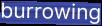
burrowing